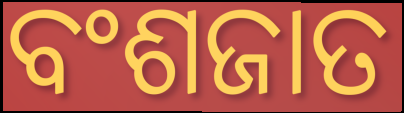
ବଂଶଜାତ